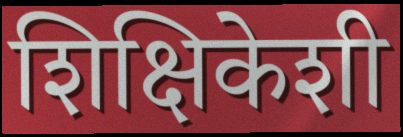
शिक्षिकेशी